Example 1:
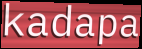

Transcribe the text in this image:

kadapa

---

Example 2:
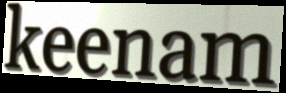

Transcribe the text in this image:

keenam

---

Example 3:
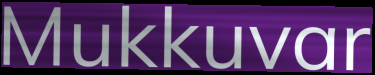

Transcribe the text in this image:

Mukkuvar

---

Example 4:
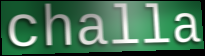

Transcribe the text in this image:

challa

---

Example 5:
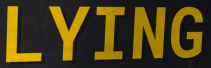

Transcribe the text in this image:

LYING